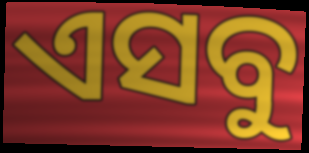
ଏସବୁ